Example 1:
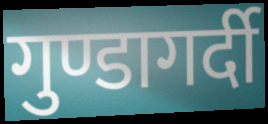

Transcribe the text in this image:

गुण्डागर्दी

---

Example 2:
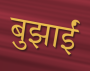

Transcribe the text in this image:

बुझाईं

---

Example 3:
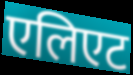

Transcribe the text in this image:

एलिएट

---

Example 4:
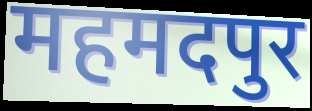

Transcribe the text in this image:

महमदपुर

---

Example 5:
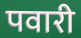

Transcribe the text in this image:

पवारी